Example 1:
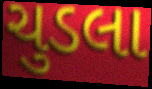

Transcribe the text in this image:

ચુડલા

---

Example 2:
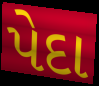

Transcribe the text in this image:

પેદા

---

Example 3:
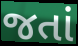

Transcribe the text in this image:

જતાં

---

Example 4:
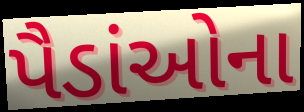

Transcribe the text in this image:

પૈડાંઓના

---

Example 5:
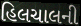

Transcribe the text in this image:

હિલચાલની